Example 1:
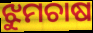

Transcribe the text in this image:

ଝୁମଚାଷ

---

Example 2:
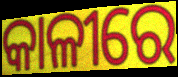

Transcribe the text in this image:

କାଳୀରେ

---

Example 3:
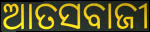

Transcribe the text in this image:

ଆତସବାଜୀ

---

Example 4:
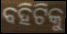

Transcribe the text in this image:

ବହିଟିକୁ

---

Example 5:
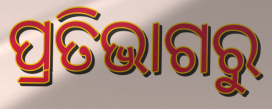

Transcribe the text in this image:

ପ୍ରତିଭାଗରୁ